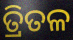
ତ୍ରିତଳ